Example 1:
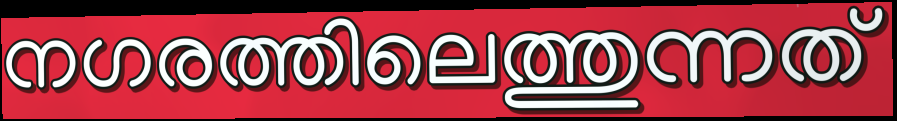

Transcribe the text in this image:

നഗരത്തിലെത്തുന്നത്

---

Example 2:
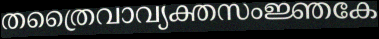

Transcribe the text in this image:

തത്രൈവാവ്യക്തസംജ്ഞകേ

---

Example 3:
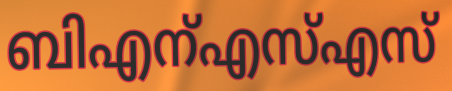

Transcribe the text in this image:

ബിഎന്എസ്എസ്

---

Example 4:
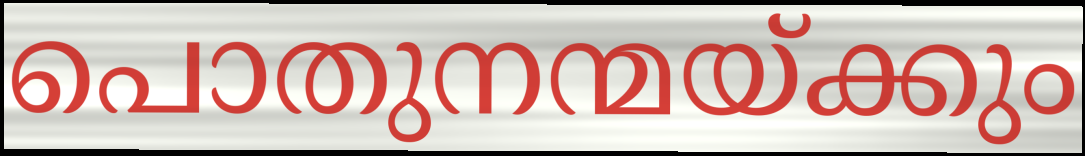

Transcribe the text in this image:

പൊതുനന്മയ്ക്കും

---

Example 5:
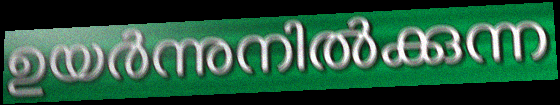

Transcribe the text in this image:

ഉയർന്നുനിൽക്കുന്ന